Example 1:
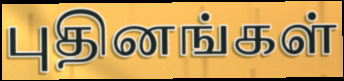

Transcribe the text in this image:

புதினங்கள்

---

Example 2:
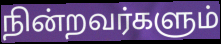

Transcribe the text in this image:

நின்றவர்களும்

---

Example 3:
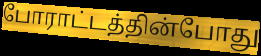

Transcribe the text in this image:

போராட்டத்தின்போது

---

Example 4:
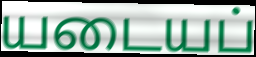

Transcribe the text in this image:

யடையப்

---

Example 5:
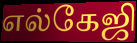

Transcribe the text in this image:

எல்கேஜி